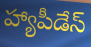
హ్యాపీడేస్